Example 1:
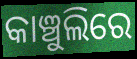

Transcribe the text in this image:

କାଞ୍ଚୁଲିରେ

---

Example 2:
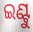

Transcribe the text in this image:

ଇଣ୍ଟୁ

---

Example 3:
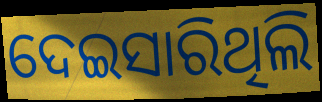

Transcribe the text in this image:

ଦେଇସାରିଥିଲି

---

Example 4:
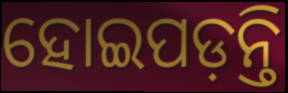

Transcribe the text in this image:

ହୋଇପଡ଼ନ୍ତି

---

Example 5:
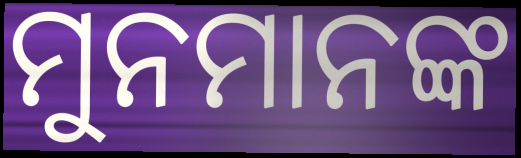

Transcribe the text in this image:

ମୁନମାନଙ୍କ